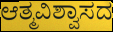
ಆತ್ಮವಿಶ್ವಾಸದ